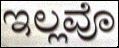
ಇಲ್ಲವೊ